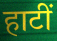
हाटीं